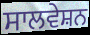
ਸਾਲਵੇਸ਼ਨ